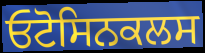
ਓਟੋਸਿਨਕਲਸ